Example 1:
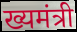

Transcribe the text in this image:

ख्यमंत्री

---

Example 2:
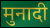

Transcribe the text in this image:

मुनादी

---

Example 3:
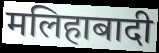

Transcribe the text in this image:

मलिहाबादी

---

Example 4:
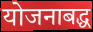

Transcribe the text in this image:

योजनाबद्ध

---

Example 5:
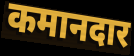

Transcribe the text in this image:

कमानदार